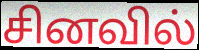
சினவில்